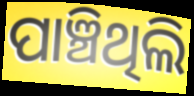
ପାଞ୍ଚିଥିଲି